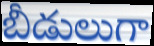
బీడులుగా